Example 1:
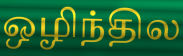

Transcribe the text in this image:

ஒழிந்தில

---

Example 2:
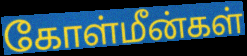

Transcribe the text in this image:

கோள்மீன்கள்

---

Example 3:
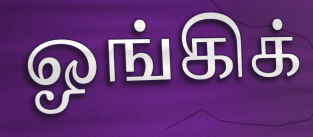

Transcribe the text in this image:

ஓங்கிக்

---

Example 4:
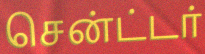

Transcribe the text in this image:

சென்ட்டர்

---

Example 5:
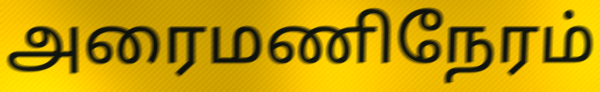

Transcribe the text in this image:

அரைமணிநேரம்